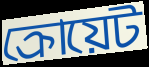
ক্রোয়েট